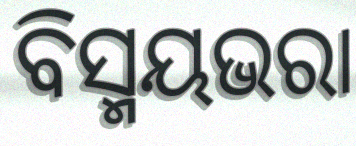
ବିସ୍ମୟଭରା